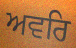
ਅਵਰਿ